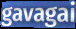
gavagai